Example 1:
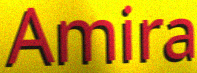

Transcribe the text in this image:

Amira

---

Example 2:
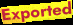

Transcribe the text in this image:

Exported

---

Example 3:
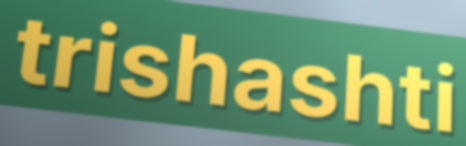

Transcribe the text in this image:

trishashti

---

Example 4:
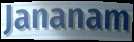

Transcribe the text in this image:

Jananam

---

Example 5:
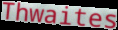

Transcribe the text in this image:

Thwaites